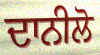
ਦਾਨੀਲੋ